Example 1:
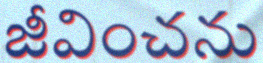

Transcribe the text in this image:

జీవించను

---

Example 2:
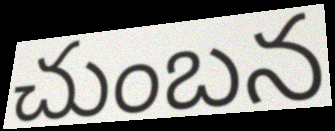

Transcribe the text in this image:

చుంబన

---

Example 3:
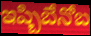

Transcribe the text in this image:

ఇష్బిబేనోబ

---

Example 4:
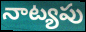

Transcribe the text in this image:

నాట్యపు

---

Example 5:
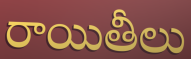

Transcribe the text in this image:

రాయితీలు